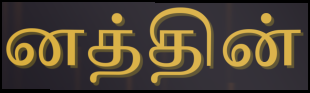
னத்தின்